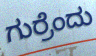
ಗುರ್ರೆಂದು